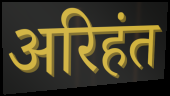
अरिहंत